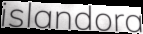
islandora